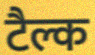
टैल्क